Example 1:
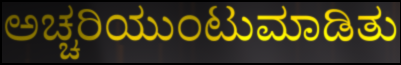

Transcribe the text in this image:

ಅಚ್ಚರಿಯುಂಟುಮಾಡಿತು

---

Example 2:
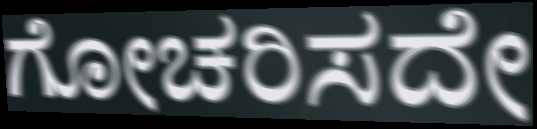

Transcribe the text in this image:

ಗೋಚರಿಸದೇ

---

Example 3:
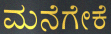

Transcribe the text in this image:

ಮನೆಗೇಕೆ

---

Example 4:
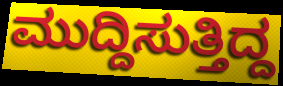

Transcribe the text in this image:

ಮುದ್ದಿಸುತ್ತಿದ್ದ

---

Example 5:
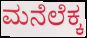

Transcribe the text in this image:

ಮನೆಲೆಕ್ಕ